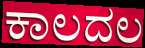
ಕಾಲದಲ